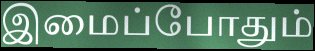
இமைப்போதும்